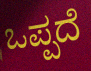
ಒಪ್ಪದೆ